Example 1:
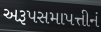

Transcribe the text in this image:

અરૂપસમાપત્તીનં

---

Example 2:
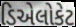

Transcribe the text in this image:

ડિએલોકેટ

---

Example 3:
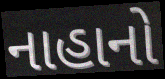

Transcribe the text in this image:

નાહાનો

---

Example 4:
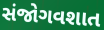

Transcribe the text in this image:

સંજોગવશાત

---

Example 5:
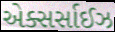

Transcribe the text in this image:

એક્સર્સાઈઝ